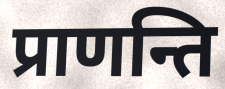
प्राणन्ति